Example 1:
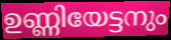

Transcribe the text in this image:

ഉണ്ണിയേട്ടനും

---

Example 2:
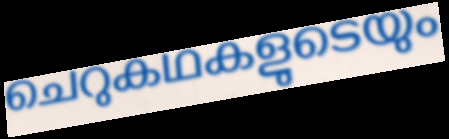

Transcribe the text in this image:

ചെറുകഥകളുടെയും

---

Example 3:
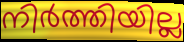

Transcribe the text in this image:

നിർത്തിയില്ല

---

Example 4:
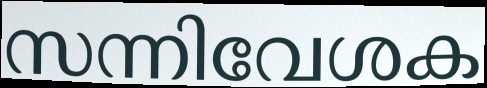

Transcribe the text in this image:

സന്നിവേശക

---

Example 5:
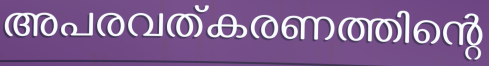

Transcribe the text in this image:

അപരവത്കരണത്തിന്റെ